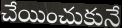
చేయించుకునే